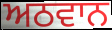
ਅਠਵਾਨ